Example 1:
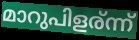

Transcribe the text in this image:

മാറുപിളര്ന്ന്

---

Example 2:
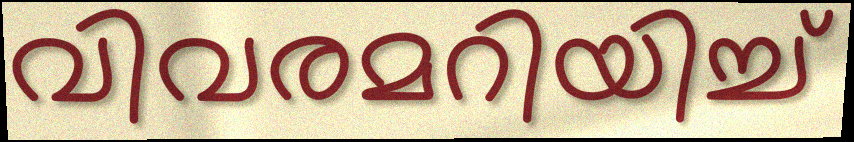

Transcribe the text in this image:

വിവരമറിയിച്ച്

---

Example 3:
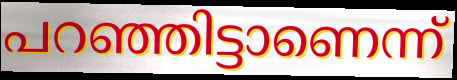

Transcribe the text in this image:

പറഞ്ഞിട്ടാണെന്ന്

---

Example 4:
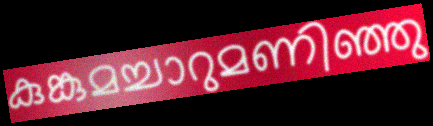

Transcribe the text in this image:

കുങ്കുമച്ചാറുമണിഞ്ഞു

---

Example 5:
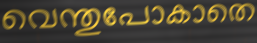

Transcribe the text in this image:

വെന്തുപോകാതെ